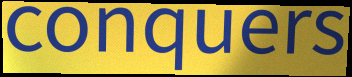
conquers